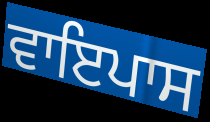
ਵਾਇਪਾਸ